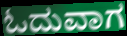
ಓದುವಾಗ